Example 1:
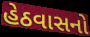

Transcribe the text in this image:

હેઠવાસનો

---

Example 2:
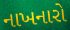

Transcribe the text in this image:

નાખનારો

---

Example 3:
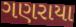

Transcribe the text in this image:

ગણરાયા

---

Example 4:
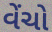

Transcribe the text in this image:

વેંચો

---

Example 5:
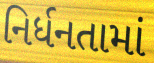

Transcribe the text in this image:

નિર્ધનતામાં